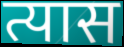
त्यास